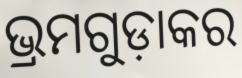
ଭ୍ରମଗୁଡ଼ାକର